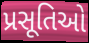
પ્રસૂતિઓ